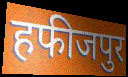
हफीजपुर